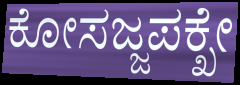
ಕೋಸಜ್ಜಪಕ್ಖೇ